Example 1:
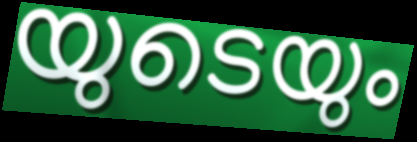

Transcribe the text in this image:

യുടെയും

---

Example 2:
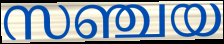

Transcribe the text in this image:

സഞ്ചയ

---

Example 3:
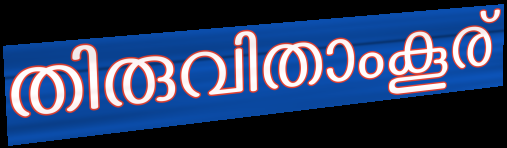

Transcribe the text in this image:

തിരുവിതാംകൂര്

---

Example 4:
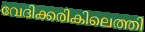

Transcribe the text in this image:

വേദിക്കരികിലെത്തി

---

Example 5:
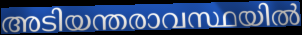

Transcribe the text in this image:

അടിയന്തരാവസ്ഥയിൽ